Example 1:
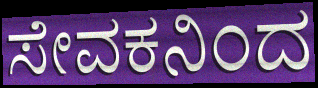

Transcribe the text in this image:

ಸೇವಕನಿಂದ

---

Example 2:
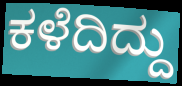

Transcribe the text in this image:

ಕಳೆದಿದ್ದು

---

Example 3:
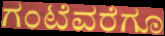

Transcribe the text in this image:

ಗಂಟೆವರೆಗೂ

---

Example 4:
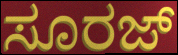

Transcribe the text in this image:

ಸೂರಜ್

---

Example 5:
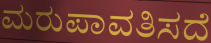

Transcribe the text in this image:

ಮರುಪಾವತಿಸದೆ